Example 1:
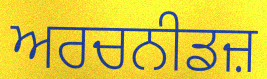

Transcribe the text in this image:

ਅਰਚਨੀਡਜ਼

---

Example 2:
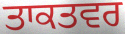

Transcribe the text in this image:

ਤਾਕਤਵਰ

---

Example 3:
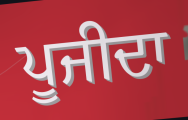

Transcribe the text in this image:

ਪੂਜੀਦਾ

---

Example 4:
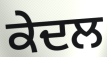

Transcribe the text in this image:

ਕੇਦਲ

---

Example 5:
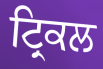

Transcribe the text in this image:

ਟ੍ਰਿਕਲ